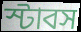
স্টাবস